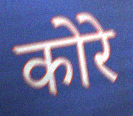
कोरे